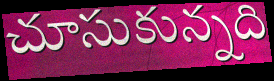
చూసుకున్నది